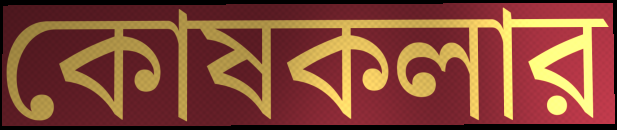
কোষকলার